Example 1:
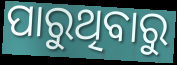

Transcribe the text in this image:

ପାରୁଥିବାରୁ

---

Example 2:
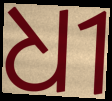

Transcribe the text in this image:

ଧୀ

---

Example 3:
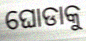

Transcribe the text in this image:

ଘୋଡାକୁ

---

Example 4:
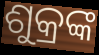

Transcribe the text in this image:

ଶୁକ୍ରଙ୍କ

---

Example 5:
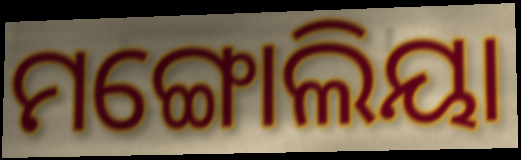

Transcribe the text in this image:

ମଙ୍ଗୋଲିୟା